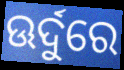
ଊର୍ଦୁରେ